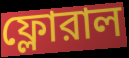
ফ্লোরাল